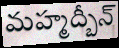
మహ్మద్బీన్